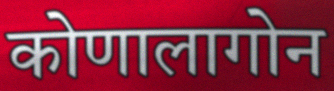
कोणालागोन